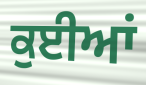
ਕੁਈਆਂ